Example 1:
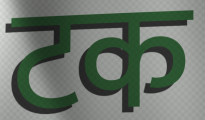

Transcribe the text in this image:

टक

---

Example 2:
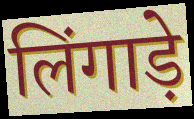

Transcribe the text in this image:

लिंगाड़े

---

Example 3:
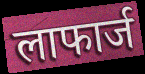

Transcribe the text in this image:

लाफार्ज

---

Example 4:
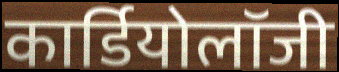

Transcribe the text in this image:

कार्डियोलॉजी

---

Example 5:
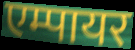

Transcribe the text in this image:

एम्पायर